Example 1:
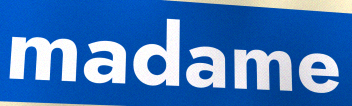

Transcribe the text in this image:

madame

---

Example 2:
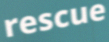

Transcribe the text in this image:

rescue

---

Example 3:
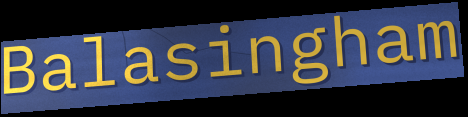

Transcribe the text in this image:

Balasingham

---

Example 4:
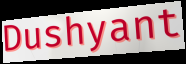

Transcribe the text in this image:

Dushyant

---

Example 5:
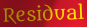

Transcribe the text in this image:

Residual